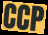
CCP